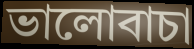
ভালোবাচা